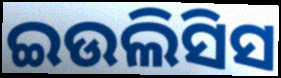
ଇଉଲିସିସ